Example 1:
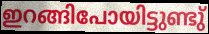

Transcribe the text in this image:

ഇറങ്ങിപോയിട്ടുണ്ടു്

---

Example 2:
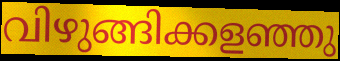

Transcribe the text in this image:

വിഴുങ്ങിക്കളഞ്ഞു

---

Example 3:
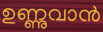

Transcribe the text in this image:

ഉണ്ണുവാൻ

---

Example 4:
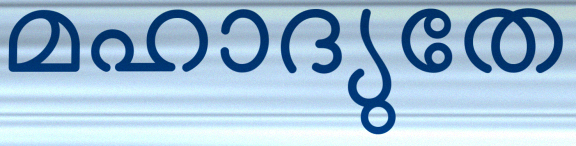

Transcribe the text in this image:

മഹാദ്യുതേ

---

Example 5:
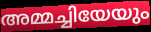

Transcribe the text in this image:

അമ്മച്ചിയേയും